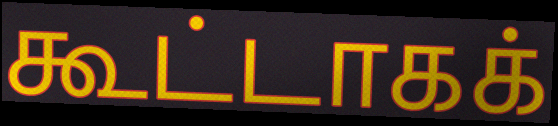
கூட்டாகக்